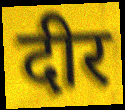
दीर